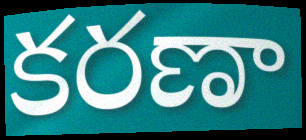
కరణా